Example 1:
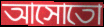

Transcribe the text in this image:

আসোতো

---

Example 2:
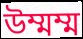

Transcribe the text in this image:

উম্মম্ম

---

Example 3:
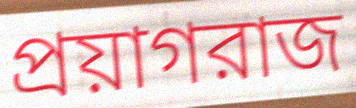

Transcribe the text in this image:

প্রয়াগরাজ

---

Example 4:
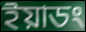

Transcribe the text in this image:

ইয়াডং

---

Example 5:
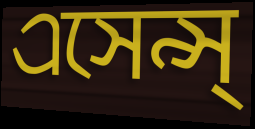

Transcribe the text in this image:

এসেন্স্